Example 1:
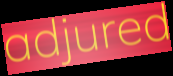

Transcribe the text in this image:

adjured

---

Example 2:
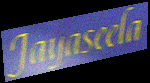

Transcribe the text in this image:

Jayaseela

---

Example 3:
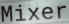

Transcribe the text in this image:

Mixer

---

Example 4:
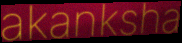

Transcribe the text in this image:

akanksha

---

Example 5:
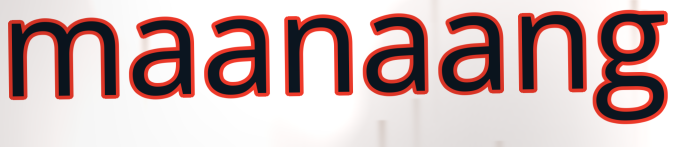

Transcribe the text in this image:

maanaang